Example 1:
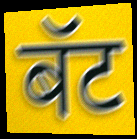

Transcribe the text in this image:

बॅट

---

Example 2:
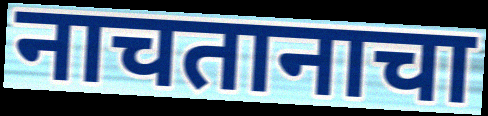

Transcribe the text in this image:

नाचतानाचा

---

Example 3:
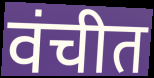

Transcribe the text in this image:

वंचीत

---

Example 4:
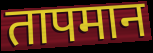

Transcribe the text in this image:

तापमान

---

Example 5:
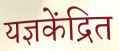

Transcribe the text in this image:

यज्ञकेंद्रित